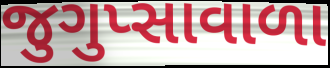
જુગુપ્સાવાળા